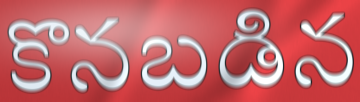
కొనబడిన